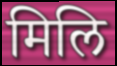
मिलि